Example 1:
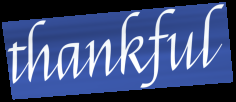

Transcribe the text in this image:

thankful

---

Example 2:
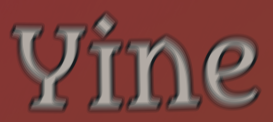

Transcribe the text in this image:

Yine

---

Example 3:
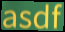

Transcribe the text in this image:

asdf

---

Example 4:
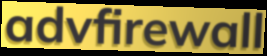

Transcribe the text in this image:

advfirewall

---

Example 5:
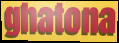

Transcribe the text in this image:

ghatona